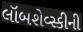
લૉબશેવ્સ્કીની